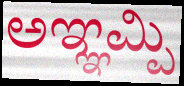
ಅಞ್ಞಮ್ಪಿ